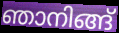
ഞാനിങ്ങ്